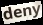
deny